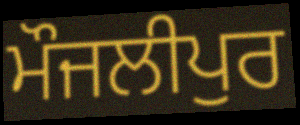
ਮੌਜਲੀਪੁਰ